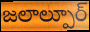
జలాల్పూర్